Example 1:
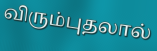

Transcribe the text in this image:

விரும்புதலால்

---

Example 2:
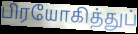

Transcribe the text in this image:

பிரயோகித்துப்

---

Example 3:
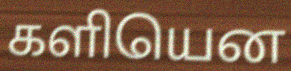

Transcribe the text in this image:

களியென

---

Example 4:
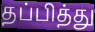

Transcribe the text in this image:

தப்பித்து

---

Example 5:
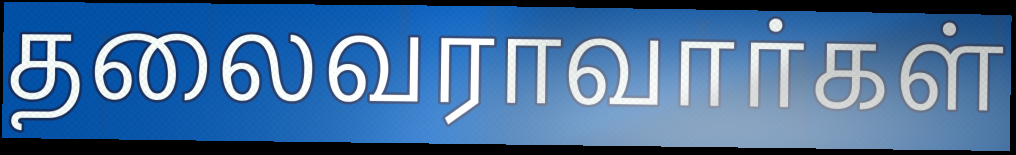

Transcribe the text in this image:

தலைவராவார்கள்